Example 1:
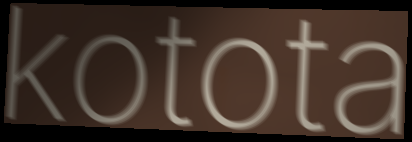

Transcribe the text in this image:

kotota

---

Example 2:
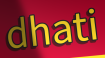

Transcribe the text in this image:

dhati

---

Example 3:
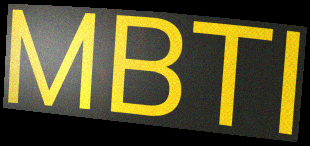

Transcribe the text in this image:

MBTI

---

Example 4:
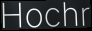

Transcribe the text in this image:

Hochr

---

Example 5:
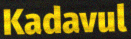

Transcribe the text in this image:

Kadavul